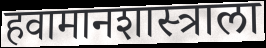
हवामानशास्त्राला